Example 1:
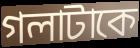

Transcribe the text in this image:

গলাটাকে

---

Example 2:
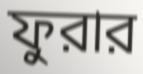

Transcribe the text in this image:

ফুরার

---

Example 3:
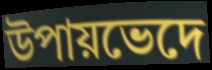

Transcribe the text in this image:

উপায়ভেদে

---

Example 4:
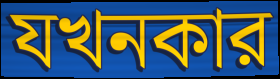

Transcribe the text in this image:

যখনকার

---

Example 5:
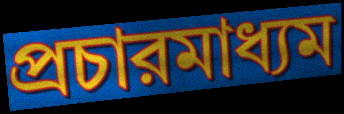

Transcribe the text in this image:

প্রচারমাধ্যম